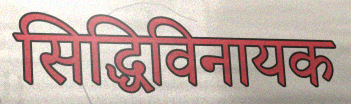
सिद्धिविनायक